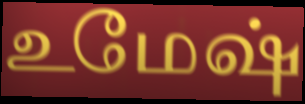
உமேஷ்